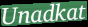
Unadkat